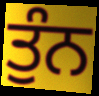
ਤੁੰਨ